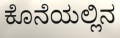
ಕೊನೆಯಲ್ಲಿನ